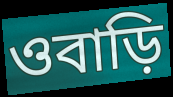
ওবাড়ি